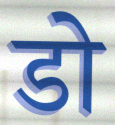
डो